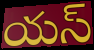
యస్